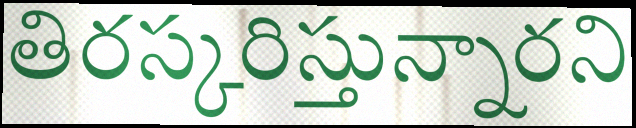
తిరస్కరిస్తున్నారని